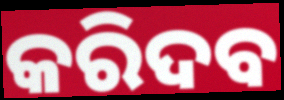
କରିଦବ